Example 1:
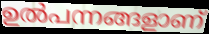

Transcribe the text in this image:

ഉൽപന്നങ്ങളാണ്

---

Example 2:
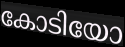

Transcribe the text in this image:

കോടിയോ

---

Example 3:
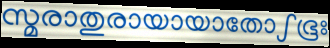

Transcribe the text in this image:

സ്മരാതുരായായാതോഽഭൂഃ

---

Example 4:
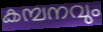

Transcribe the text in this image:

കമ്പനവും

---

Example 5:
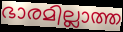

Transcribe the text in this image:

ഭാരമില്ലാത്ത